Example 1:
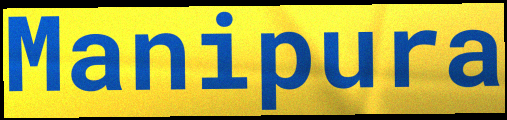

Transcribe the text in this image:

Manipura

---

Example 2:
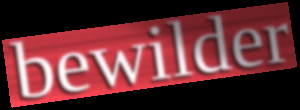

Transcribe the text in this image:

bewilder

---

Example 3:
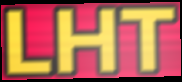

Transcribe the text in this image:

LHT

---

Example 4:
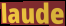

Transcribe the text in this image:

laude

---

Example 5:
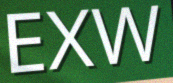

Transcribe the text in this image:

EXW